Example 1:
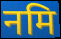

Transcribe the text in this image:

नमि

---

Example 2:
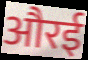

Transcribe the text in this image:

औरई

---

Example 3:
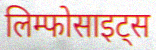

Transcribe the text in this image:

लिम्फोसाइट्स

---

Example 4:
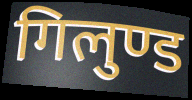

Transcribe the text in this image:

गिलुण्ड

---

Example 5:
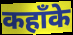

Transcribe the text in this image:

कहाँके